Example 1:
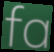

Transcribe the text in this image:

fa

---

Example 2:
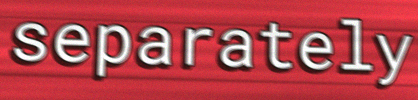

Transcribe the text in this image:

separately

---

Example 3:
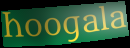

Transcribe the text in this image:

hoogala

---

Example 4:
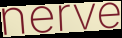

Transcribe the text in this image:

nerve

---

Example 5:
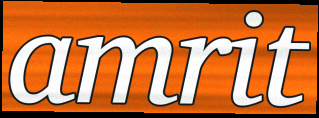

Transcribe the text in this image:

amrit